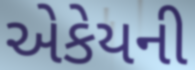
એકેયની